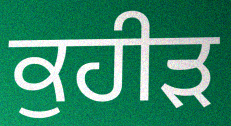
ਕੁਹੀੜ